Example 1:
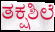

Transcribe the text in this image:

ತಕ್ಷಶಿಲೆ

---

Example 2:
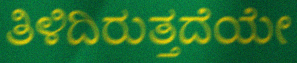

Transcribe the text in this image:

ತಿಳಿದಿರುತ್ತದೆಯೇ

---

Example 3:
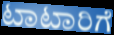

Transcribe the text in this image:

ಟಾಟಾರಿಗೆ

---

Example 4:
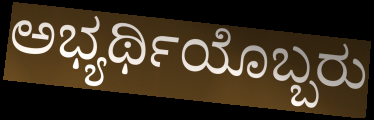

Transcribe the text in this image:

ಅಭ್ಯರ್ಥಿಯೊಬ್ಬರು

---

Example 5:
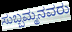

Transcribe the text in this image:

ಸುಬ್ಬಮ್ಮನವರು